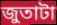
জুতাটা